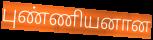
புண்ணியனான